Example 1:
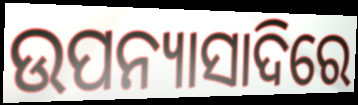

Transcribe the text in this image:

ଉପନ୍ୟାସାଦିରେ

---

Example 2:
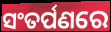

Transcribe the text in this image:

ସଂତର୍ପଣରେ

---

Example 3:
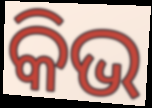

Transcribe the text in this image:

କିଭ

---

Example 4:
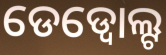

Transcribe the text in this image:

ଡେଡ୍ବୋଲ୍ଟ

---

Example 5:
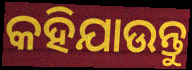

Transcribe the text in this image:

କହିଯାଉନ୍ତୁ